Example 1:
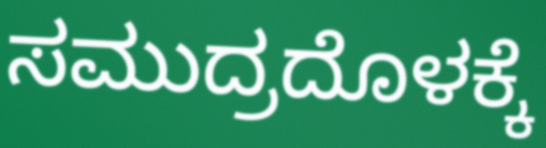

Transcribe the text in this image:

ಸಮುದ್ರದೊಳಕ್ಕೆ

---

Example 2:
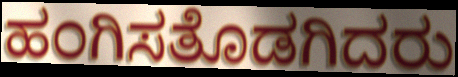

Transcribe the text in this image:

ಹಂಗಿಸತೊಡಗಿದರು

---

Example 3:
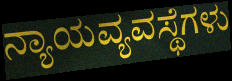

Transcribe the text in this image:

ನ್ಯಾಯವ್ಯವಸ್ಥೆಗಳು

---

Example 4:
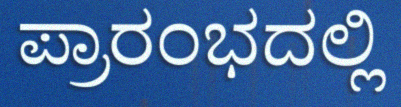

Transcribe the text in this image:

ಪ್ರಾರಂಭದಲ್ಲಿ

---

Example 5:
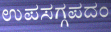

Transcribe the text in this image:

ಉಪಸಗ್ಗಪದಂ